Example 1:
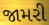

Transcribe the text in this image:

જામરી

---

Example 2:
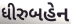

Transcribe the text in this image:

ધીરુબહેન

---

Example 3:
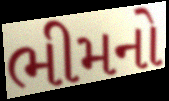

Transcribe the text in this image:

ભીમનો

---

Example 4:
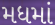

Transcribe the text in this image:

મધમાં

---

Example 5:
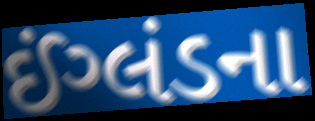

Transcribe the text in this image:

ઈંગ્લંડના